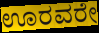
ಊರವರೇ